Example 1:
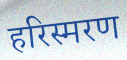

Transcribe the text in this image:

हरिस्मरण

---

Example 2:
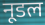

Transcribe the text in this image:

नूडल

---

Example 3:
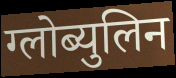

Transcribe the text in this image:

ग्लोब्युलिन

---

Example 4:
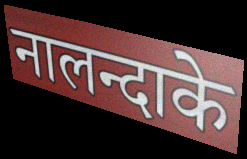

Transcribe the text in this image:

नालन्दाके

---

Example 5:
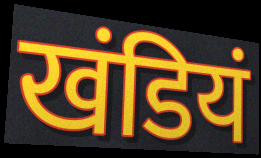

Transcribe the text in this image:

खंडियं